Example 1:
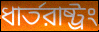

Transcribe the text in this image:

ধার্তরাষ্ট্রং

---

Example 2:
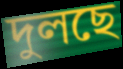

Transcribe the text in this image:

দুলছে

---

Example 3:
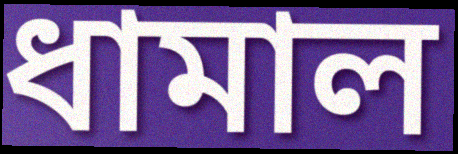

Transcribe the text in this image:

ধামাল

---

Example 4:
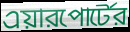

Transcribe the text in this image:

এয়ারপোর্টের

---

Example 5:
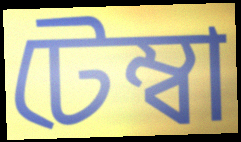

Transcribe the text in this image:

টেম্বা